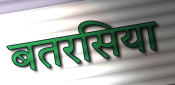
बतरसिया